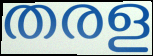
തരള